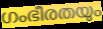
ഗംഭീരതയും